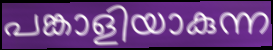
പങ്കാളിയാകുന്ന